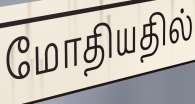
மோதியதில்